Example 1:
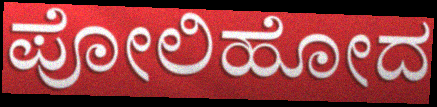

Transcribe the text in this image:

ಪೋಲಿಹೋದ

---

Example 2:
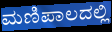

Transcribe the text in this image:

ಮಣಿಪಾಲದಲ್ಲಿ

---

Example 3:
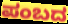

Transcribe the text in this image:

ಪಂಬದ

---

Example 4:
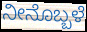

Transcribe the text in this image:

ನೀನೊಬ್ಬಳೆ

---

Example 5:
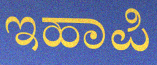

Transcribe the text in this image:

ಇಹಾಪಿ